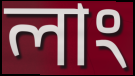
লাং